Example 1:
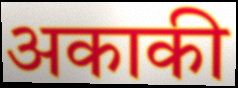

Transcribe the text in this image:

अकाकी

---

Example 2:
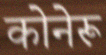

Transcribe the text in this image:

कोनेरू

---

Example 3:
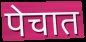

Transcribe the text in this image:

पेचात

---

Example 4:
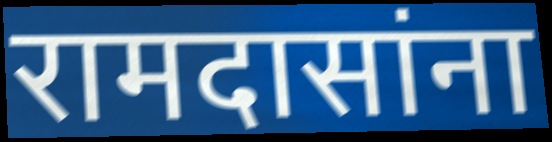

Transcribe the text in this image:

रामदासांना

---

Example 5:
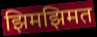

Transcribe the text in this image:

झिमझिमत